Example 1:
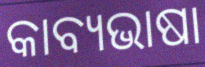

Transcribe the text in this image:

କାବ୍ୟଭାଷା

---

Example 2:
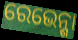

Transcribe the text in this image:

ରେଭେନ୍ଶା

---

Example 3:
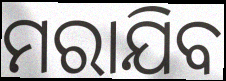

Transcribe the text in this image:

ମରାଯିବ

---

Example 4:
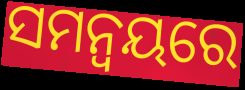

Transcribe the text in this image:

ସମନ୍ବୟରେ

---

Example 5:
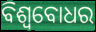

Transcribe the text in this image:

ବିଶ୍ବବୋଧର